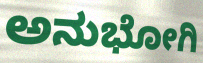
ಅನುಭೋಗಿ